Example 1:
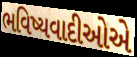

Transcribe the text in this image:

ભવિષ્યવાદીઓએ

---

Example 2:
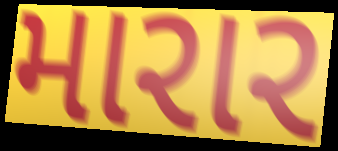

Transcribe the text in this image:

મારાર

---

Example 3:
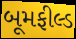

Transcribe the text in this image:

બૂમફીલ્ડ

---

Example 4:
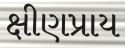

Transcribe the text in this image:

ક્ષીણપ્રાય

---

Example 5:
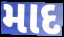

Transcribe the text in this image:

માદ